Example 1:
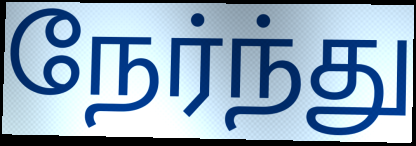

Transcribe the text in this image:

நேர்ந்து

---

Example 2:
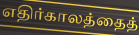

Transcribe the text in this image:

எதிர்காலத்தைத்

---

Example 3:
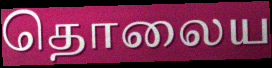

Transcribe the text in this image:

தொலைய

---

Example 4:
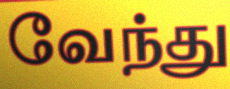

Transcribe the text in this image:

வேந்து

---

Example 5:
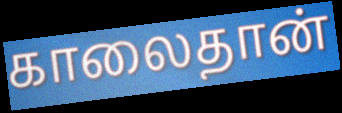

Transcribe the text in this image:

காலைதான்